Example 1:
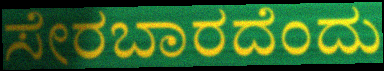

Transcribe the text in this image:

ಸೇರಬಾರದೆಂದು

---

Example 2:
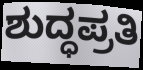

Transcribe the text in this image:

ಶುದ್ಧಪ್ರತಿ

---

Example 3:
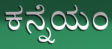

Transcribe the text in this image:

ಕನ್ನೆಯಂ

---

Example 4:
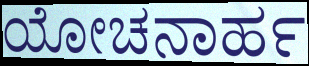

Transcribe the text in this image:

ಯೋಚನಾರ್ಹ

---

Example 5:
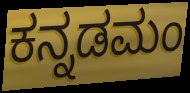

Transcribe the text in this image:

ಕನ್ನಡಮಂ